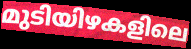
മുടിയിഴകളിലെ